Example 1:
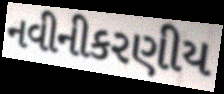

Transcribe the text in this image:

નવીનીકરણીય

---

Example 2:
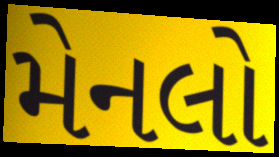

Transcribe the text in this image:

મેનલો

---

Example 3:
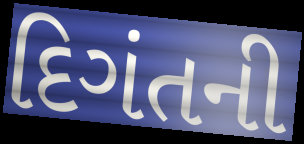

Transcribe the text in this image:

દિગંતની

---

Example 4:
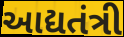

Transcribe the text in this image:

આદ્યતંત્રી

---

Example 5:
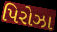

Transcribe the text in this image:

પિરોઝા